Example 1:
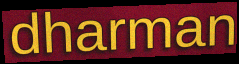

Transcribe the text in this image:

dharman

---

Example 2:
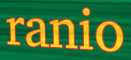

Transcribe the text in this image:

ranio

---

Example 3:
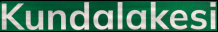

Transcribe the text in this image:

Kundalakesi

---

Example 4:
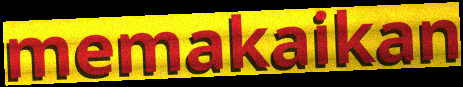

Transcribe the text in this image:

memakaikan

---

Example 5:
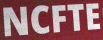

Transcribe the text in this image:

NCFTE